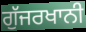
ਗੁੱਜਰਖਾਨੀ